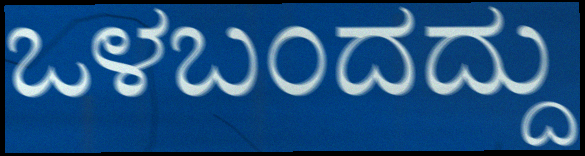
ಒಳಬಂದದ್ದು